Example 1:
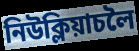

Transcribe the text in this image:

নিউক্লিয়াচলৈ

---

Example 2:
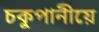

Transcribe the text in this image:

চকুপানীয়ে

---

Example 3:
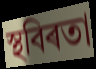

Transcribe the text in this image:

স্থবিৰতা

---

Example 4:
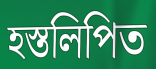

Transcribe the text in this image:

হস্তলিপিত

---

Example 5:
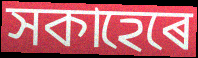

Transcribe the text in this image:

সকাহেৰে